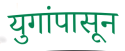
युगांपासून